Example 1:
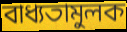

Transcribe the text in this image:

বাধ্যতামুলক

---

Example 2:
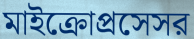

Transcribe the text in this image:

মাইক্রোপ্রসেসর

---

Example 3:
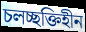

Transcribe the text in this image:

চলচ্ছক্তিহীন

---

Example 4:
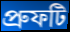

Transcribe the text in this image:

প্রুফটি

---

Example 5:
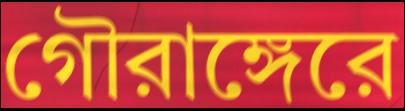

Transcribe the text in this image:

গৌরাঙ্গেরে